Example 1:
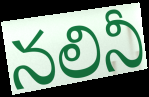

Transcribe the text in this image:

నలినీ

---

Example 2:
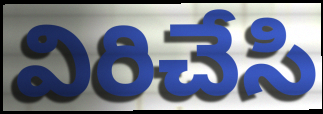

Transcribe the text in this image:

విరిచేసి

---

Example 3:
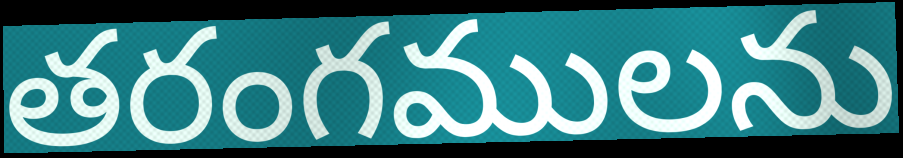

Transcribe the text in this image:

తరంగములను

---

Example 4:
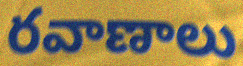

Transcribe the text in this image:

రవాణాలు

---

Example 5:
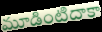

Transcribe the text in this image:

మూడింటిదాకా